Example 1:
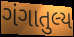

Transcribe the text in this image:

ગંગાતુલ્ય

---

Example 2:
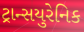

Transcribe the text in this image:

ટ્રાન્સયુરેનિક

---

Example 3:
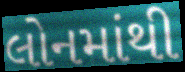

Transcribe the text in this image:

લોનમાંથી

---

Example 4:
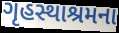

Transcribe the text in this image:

ગૃહસ્થાશ્રમના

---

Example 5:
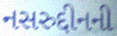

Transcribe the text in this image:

નસરુદ્દીનની